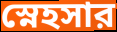
স্নেহসার